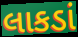
લાકડાં